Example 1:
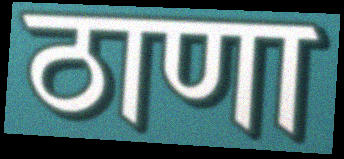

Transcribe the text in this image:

ठाणा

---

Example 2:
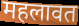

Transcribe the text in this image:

महलावत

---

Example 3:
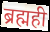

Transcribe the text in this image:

ब्रह्मही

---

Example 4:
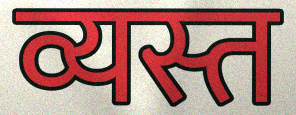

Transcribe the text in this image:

व्‍यस्‍त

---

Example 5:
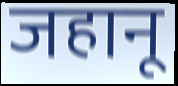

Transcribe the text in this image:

जहानू